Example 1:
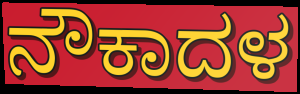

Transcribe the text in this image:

ನೌಕಾದಳ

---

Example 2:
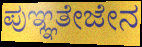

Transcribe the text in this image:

ಪುಞ್ಞತೇಜೇನ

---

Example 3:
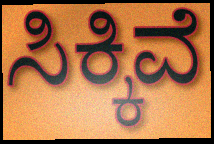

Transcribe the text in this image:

ಸಿಕ್ಕಿವೆ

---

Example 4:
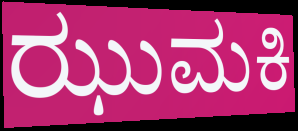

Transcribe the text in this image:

ಝುಮಕಿ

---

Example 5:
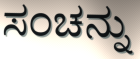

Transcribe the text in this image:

ಸಂಚನ್ನು